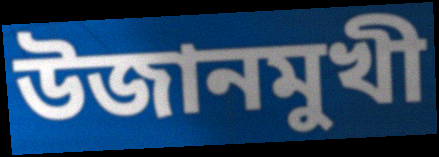
উজানমুখী